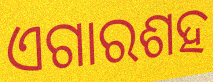
ଏଗାରଶହ